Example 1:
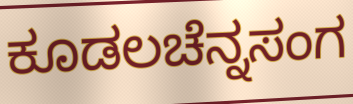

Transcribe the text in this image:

ಕೂಡಲಚೆನ್ನಸಂಗ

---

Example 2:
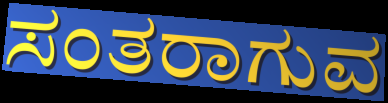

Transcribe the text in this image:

ಸಂತರಾಗುವ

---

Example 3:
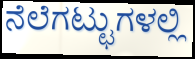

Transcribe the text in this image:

ನೆಲೆಗಟ್ಟುಗಳಲ್ಲಿ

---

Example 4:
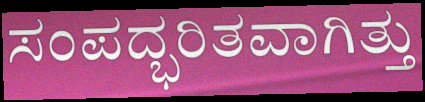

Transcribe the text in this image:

ಸಂಪದ್ಭರಿತವಾಗಿತ್ತು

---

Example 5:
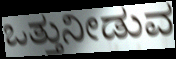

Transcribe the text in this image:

ಒತ್ತುನೀಡುವ